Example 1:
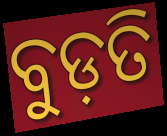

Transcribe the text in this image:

ବୁଡ଼ତି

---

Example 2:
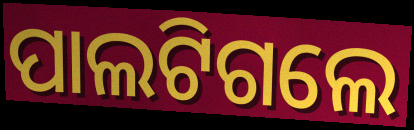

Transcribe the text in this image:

ପାଲଟିଗଲେ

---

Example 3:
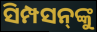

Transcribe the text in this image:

ସିମ୍ପସନ୍‍ଙ୍କୁ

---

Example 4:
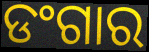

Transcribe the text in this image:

ଡଂଗାର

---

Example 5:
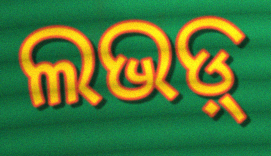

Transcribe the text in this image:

ଲଭଡ଼୍